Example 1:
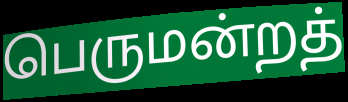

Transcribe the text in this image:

பெருமன்றத்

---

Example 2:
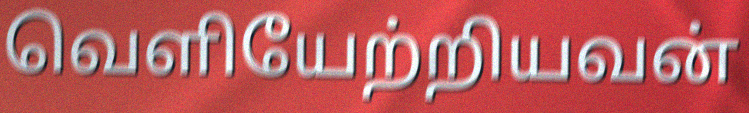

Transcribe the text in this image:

வெளியேற்றியவன்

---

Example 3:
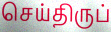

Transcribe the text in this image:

செய்திருப்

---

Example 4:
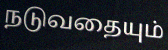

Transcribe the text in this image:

நடுவதையும்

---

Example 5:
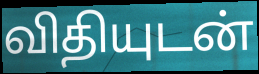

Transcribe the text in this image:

விதியுடன்